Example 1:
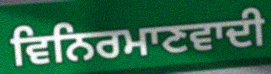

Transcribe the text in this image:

ਵਿਨਿਰਮਾਣਵਾਦੀ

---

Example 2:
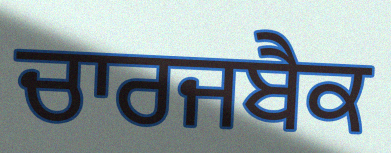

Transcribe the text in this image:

ਚਾਰਜਬੈਕ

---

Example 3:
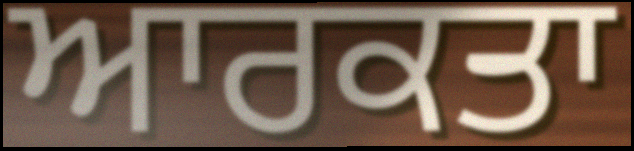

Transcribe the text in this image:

ਆਰਕਤਾ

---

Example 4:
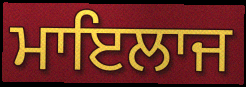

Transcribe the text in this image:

ਮਾਇਲਾਜ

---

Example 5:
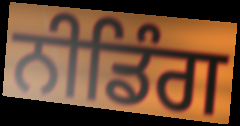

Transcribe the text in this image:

ਨੀਡਿੰਗ